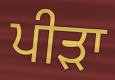
ਪੀੜਾ